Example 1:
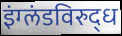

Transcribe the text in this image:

इंग्लंडविरुद्ध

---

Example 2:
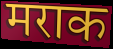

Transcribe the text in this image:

मराक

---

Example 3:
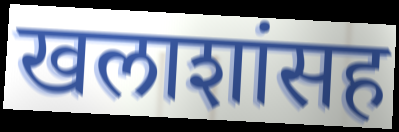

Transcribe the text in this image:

खलाशांसह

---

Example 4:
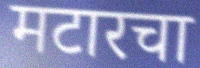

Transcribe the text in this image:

मटारचा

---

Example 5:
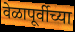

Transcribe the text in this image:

वेळापूर्वीच्या